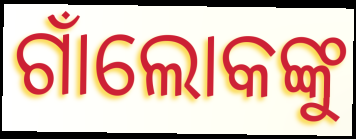
ଗାଁଲୋକଙ୍କୁ